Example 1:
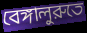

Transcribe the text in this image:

বেঙ্গালুরুতে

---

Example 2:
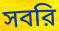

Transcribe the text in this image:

সবরি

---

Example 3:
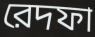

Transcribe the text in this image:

রেদফা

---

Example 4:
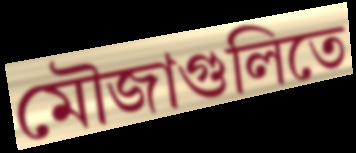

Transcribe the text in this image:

মৌজাগুলিতে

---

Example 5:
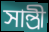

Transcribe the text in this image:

সান্ত্রী